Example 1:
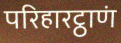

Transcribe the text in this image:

परिहारट्ठाणं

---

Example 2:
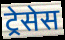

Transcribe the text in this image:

ट्रेसेस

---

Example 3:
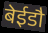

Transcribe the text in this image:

बेईडौ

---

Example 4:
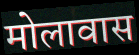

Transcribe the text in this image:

मोलावास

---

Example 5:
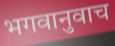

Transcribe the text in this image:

भगवानुवाच